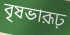
বৃষভারূঢ়